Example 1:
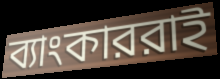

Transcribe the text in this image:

ব্যাংকাররাই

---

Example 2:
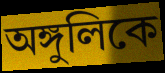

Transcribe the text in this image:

অঙ্গুলিকে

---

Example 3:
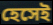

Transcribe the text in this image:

হেসেই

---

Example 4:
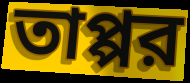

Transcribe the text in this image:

তাপ্পর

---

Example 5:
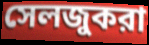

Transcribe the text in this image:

সেলজুকরা